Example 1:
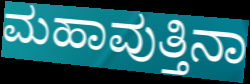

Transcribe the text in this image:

ಮಹಾವುತ್ತಿನಾ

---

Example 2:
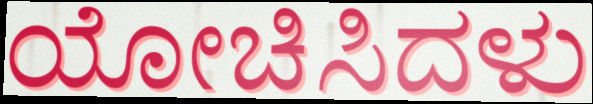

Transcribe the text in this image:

ಯೋಚಿಸಿದಳು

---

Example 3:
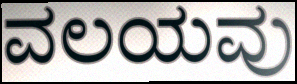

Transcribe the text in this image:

ವಲಯವು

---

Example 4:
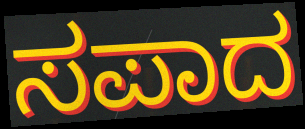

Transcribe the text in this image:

ಸಪಾದ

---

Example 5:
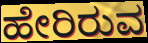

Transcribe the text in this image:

ಹೇರಿರುವ